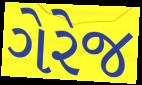
ગેરેજ